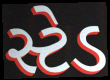
સ્ટેડ